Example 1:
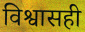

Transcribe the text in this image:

विश्वासही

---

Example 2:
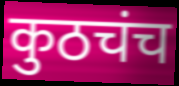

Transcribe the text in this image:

कुठचंच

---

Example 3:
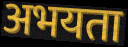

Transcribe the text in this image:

अभयता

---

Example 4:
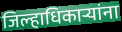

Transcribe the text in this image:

जिल्हाधिकाऱ्यांना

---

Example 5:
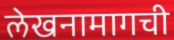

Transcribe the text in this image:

लेखनामागची